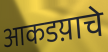
आकडय़ाचे